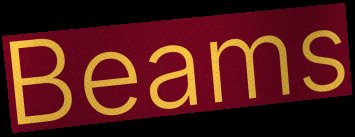
Beams